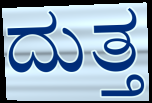
ದುತ್ತ